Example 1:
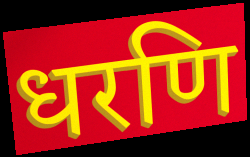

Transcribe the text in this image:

धरणि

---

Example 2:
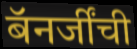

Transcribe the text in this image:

बॅनर्जींची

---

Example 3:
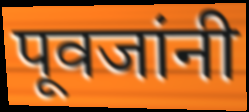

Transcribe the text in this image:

पूवजांनी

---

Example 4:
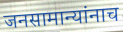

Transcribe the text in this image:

जनसामान्यांनाच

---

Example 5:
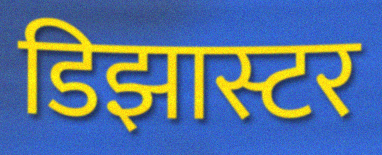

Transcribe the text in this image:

डिझास्टर